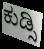
ಕುಡ್ಸಿ